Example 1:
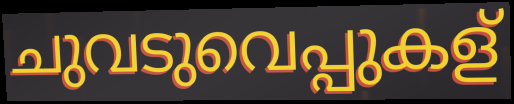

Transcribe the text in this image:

ചുവടുവെപ്പുകള്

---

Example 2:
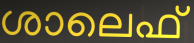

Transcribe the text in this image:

ശാലെഫ്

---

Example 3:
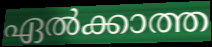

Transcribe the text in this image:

ഏൽക്കാത്ത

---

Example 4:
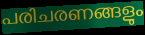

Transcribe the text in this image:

പരിചരണങ്ങളും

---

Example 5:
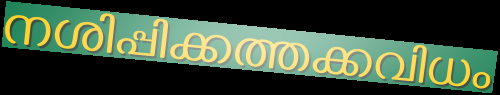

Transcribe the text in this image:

നശിപ്പിക്കത്തക്കവിധം